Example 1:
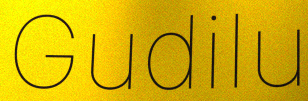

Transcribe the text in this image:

Gudilu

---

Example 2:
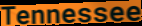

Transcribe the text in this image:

Tennessee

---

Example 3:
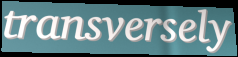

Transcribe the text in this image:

transversely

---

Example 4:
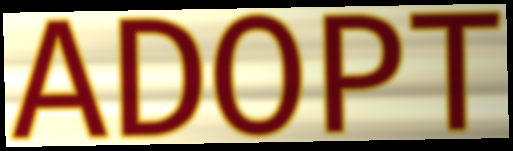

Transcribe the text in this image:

ADOPT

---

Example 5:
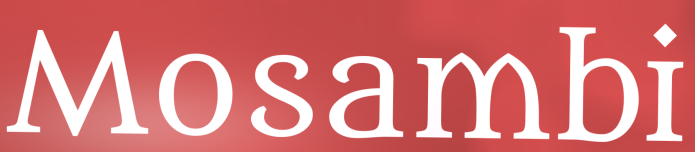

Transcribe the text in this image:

Mosambi